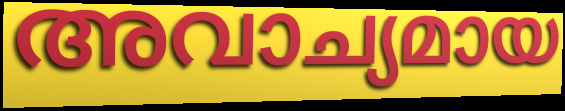
അവാച്യമായ